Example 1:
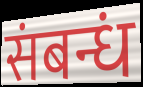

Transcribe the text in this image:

संबन्धं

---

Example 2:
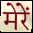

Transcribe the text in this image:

मेरें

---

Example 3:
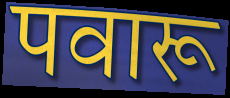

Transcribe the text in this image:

पवारू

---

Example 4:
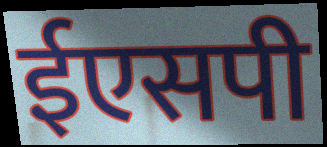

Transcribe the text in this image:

ईएसपी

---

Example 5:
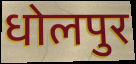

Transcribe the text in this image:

धोलपुर